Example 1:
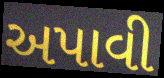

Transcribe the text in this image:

અપાવી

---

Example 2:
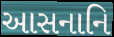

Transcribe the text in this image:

આસનાનિ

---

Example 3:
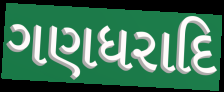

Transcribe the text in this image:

ગણધરાદિ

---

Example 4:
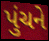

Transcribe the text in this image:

પુંચને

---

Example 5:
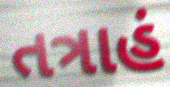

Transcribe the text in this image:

તત્રાહં